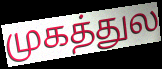
முகத்துல